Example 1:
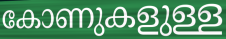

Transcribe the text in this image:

കോണുകളുള്ള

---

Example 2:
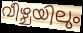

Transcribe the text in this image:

വീഴ്ചയിലും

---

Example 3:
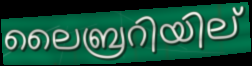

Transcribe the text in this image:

ലൈബ്രറിയില്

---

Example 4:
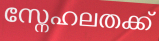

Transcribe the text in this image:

സ്നേഹലതക്ക്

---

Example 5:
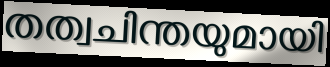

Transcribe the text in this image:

തത്വചിന്തയുമായി